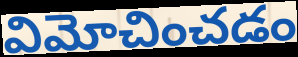
విమోచించడం